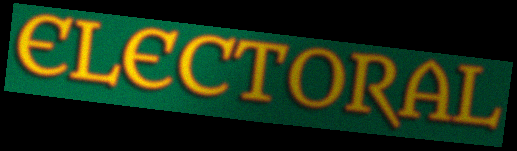
ELECTORAL